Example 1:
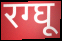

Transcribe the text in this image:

रग्घू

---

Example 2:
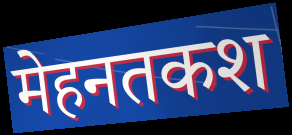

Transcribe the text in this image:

मेहनतकश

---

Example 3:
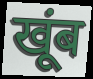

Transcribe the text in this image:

खूंब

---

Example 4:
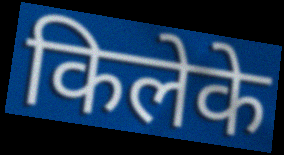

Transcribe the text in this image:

किलेके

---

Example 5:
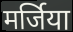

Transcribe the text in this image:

मर्जिया